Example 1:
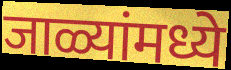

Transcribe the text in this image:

जाळ्यांमध्ये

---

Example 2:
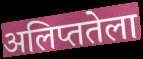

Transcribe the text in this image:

अलिप्ततेला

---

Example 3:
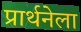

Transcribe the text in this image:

प्रार्थनेला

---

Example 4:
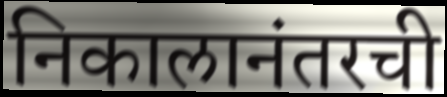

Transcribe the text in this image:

निकालानंतरची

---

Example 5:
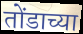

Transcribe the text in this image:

तोंडाच्या